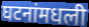
घटनांमधली